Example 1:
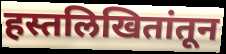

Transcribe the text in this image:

हस्तलिखितांतून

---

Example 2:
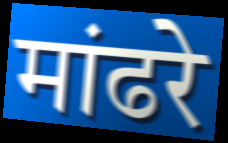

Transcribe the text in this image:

मांढरे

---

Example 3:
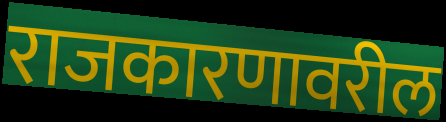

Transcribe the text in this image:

राजकारणावरील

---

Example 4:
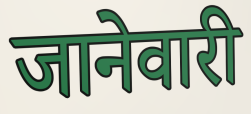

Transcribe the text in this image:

जानेवारी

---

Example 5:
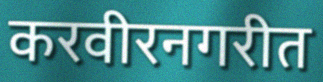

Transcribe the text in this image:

करवीरनगरीत